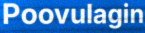
Poovulagin